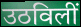
उठविलीं